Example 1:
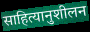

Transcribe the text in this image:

साहित्यानुशीलन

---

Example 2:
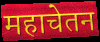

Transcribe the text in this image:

महाचेतन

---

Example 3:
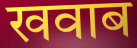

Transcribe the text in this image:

खवाब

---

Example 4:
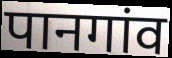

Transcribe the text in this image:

पानगांव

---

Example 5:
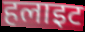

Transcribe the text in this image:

हलाइट